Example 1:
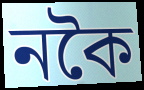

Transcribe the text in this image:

নকৈ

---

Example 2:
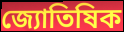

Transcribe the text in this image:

জ্যোতিষিক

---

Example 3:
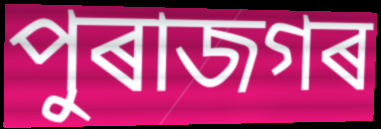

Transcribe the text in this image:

পুৰাজগৰ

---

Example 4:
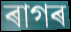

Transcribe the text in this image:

ৰাগৰ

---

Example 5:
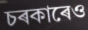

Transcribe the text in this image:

চৰকাৰেও